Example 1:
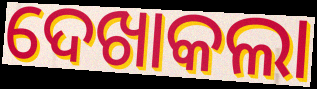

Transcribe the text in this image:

ଦେଖାକଲା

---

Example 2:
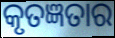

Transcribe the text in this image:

କୃତଜ୍ଞତାର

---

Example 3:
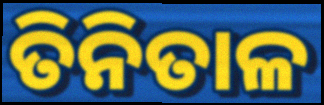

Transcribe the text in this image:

ତିନିତାଳ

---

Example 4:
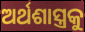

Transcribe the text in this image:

ଅର୍ଥଶାସ୍ତ୍ରକୁ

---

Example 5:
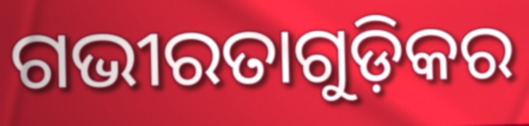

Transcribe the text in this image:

ଗଭୀରତାଗୁଡ଼ିକର